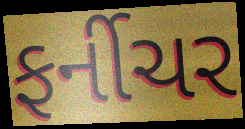
ફર્નીચર